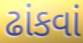
ઢાંકવાં